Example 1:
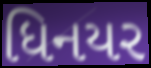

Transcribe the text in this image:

ધિનયર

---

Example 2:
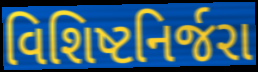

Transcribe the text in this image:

વિશિષ્ટનિર્જરા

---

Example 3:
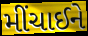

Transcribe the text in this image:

મીંચાઈને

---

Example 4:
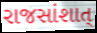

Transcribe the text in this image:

રાજસાંશાત્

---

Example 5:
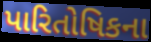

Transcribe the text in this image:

પારિતોષિકના